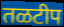
तळटीप